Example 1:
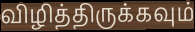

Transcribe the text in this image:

விழித்திருக்கவும்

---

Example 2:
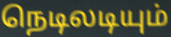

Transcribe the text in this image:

நெடிலடியும்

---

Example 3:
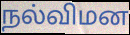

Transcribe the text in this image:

நல்விமன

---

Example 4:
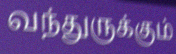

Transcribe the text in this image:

வந்துருக்கும்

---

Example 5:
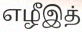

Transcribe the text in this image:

எழீஇத்